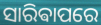
ସାରିଵାପରେ